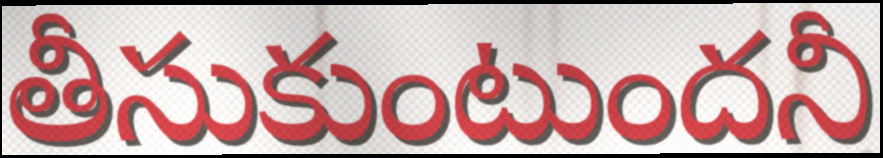
తీసుకుంటుందనీ